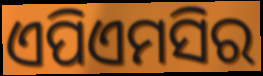
ଏପିଏମସିର